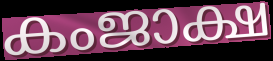
കംജാക്ഷ